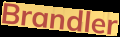
Brandler